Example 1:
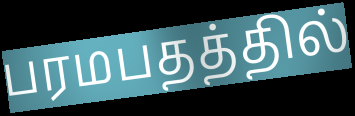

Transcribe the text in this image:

பரமபதத்தில்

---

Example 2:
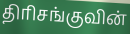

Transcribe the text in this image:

திரிசங்குவின்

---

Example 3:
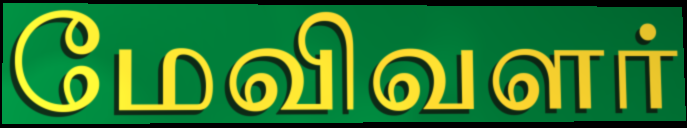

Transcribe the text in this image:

மேவிவளர்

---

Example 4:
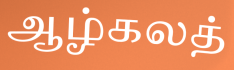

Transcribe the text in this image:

ஆழ்கலத்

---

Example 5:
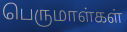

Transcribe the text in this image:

பெருமாள்கள்